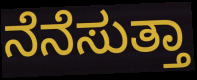
ನೆನೆಸುತ್ತಾ